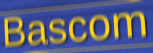
Bascom